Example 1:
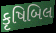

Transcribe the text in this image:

કૃષિબિલ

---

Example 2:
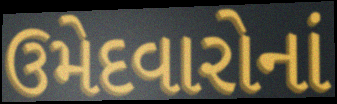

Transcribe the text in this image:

ઉમેદવારોનાં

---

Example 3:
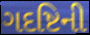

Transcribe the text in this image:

ગદષ્ટિની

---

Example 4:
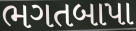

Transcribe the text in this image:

ભગતબાપા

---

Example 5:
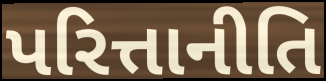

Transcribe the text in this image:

પરિત્તાનીતિ